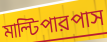
মাল্টিপারপাস